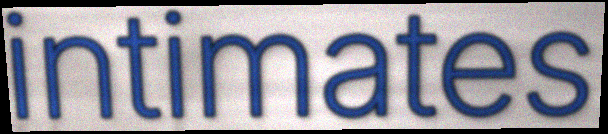
intimates